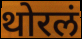
थोरलं